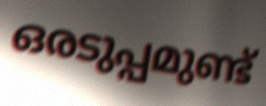
ഒരടുപ്പമുണ്ട്